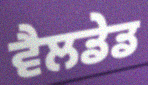
ਵੈਲਡੇਡ